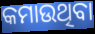
କମାଉଥିବା